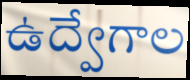
ఉద్వేగాల